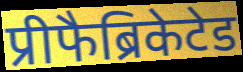
प्रीफैब्रिकेटेड